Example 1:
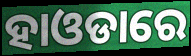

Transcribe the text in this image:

ହାଓଡାରେ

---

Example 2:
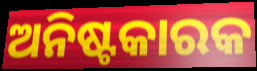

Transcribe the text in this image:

ଅନିଷ୍ଟକାରକ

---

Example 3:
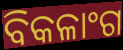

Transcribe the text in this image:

ବିକଳାଂଗ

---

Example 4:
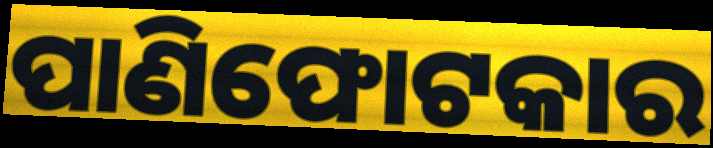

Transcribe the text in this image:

ପାଣିଫୋଟକାର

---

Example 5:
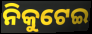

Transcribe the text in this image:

ନିକୁଟେଇ